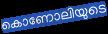
കൊണോലിയുടെ